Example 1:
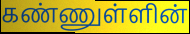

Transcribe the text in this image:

கண்ணுள்ளின்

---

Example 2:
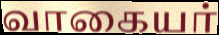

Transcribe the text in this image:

வாகையர்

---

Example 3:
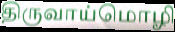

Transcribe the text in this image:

திருவாய்மொழி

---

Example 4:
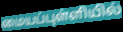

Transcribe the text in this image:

மையப்புள்ளியில்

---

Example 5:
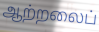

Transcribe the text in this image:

ஆற்றலைப்